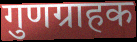
गुणग्राहक